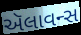
ઍલાવન્સ